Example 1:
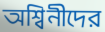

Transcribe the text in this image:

অশ্বিনীদের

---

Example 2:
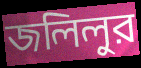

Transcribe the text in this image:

জলিলুর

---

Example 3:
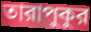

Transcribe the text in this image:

তারাপুকুর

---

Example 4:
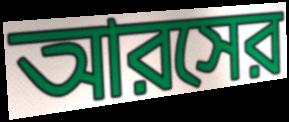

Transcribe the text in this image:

আরসের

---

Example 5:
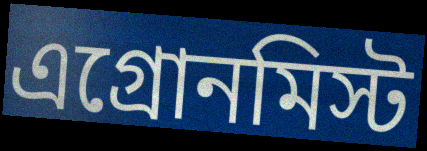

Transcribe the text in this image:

এগ্রোনমিস্ট